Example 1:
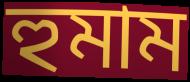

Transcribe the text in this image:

হুমাম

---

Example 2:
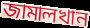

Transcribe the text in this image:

জামালখান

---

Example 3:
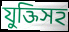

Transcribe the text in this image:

যুক্তিসহ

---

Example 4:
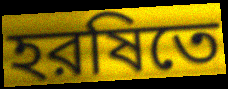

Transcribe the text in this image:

হরষিতে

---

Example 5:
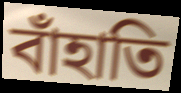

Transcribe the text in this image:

বাঁহাতি